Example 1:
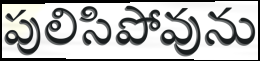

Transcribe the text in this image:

పులిసిపోవును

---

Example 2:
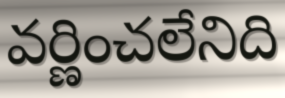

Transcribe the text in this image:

వర్ణించలేనిది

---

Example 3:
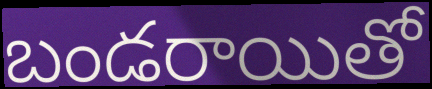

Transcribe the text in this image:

బండరాయితో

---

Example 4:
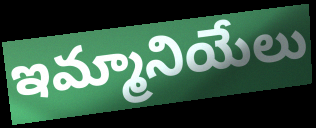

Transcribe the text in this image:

ఇమ్మానియేలు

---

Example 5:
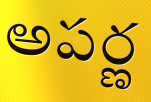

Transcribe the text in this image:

అపర్ణ